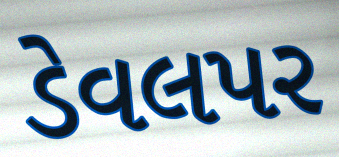
ડેવલપર